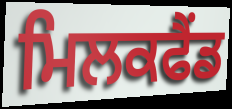
ਮਿਲਕਫੈਂਡ